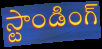
స్టాండింగ్